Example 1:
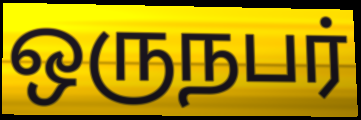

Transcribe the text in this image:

ஒருநபர்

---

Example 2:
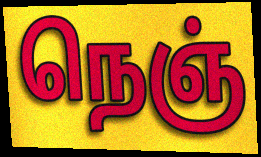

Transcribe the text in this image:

நெஞ்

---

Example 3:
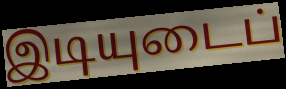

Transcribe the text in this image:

இடியுடைப்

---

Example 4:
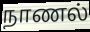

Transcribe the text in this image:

நாணல்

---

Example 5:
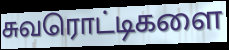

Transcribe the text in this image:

சுவரொட்டிகளை